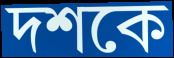
দশকে